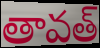
తావత్